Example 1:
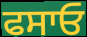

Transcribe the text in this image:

ਫਸਾਓ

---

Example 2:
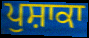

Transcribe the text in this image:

ਪੁਸ਼ਾਕਾ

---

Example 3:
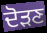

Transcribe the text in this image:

ਦੋੜਣ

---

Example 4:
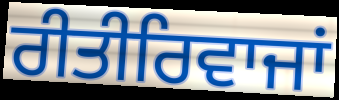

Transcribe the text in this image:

ਰੀਤੀਰਿਵਾਜਾਂ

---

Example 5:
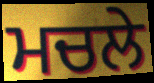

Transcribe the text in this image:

ਮਚਲੇ